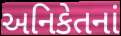
અનિકેતનાં